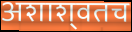
अशाश्वतच